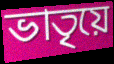
ভাতৃয়ে